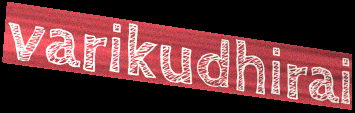
varikudhirai